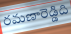
రమణారెడ్డిది